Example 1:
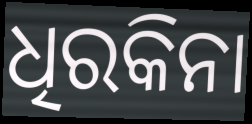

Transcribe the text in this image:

ଧିରକିନା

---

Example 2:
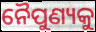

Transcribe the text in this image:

ନୈପୁଣ୍ୟକୁ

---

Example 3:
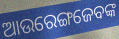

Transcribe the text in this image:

ଆଉରେଙ୍ଗଜେବଙ୍କ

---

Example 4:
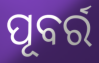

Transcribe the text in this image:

ପୂବର୍ର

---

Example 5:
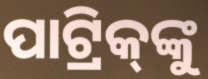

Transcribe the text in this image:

ପାଟ୍ରିକ୍‌ଙ୍କୁ